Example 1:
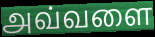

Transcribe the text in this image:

அவ்வளை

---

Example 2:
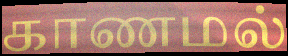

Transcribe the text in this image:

காணமல்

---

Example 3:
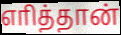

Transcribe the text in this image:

எரித்தான்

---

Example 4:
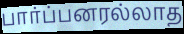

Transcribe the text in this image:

பார்ப்பனரல்லாத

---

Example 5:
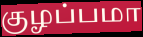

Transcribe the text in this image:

குழப்பமா